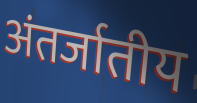
अंतर्जातीय